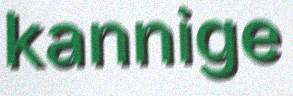
kannige